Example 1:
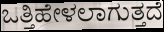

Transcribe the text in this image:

ಒತ್ತಿಹೇಳಲಾಗುತ್ತದೆ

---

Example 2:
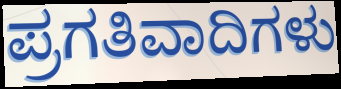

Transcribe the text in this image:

ಪ್ರಗತಿವಾದಿಗಳು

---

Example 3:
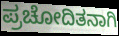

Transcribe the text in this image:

ಪ್ರಚೋದಿತನಾಗಿ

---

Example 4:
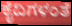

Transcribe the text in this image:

ಕೈದಿಗಳಂತೆ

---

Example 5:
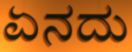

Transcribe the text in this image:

ಏನದು